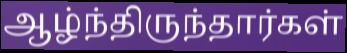
ஆழ்ந்திருந்தார்கள்